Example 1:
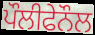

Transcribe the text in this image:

ਪੌਲੀਫੇਨੌਲ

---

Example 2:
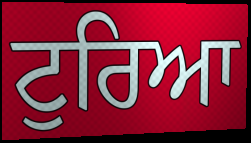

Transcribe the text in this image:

ਟੁਰਿਆ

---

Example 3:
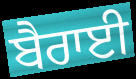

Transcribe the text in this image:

ਬੈਰਾਈ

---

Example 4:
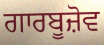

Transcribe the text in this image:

ਗਾਰਬੂਜ਼ੋਵ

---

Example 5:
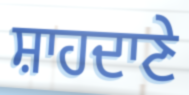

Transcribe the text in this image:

ਸ਼ਾਹਦਾਣੇ